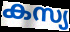
കസ്യ